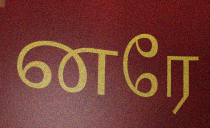
னரே